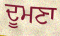
ਦੂਮਣਾ